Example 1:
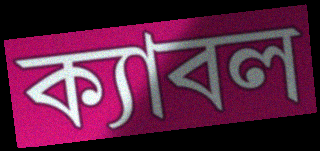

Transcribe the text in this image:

ক্যাবল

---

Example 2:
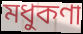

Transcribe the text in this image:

মধুকণা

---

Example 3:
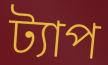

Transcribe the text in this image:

ট্যাপ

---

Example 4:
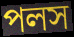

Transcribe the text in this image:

পলস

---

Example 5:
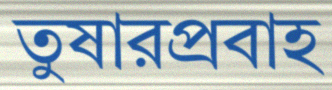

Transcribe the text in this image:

তুষারপ্রবাহ